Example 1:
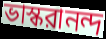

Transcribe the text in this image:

ভাস্করানন্দ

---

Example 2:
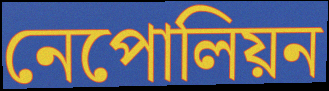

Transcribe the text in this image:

নেপোলিয়ন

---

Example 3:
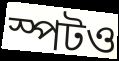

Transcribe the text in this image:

স্পটও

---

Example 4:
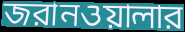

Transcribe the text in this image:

জরানওয়ালার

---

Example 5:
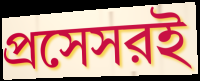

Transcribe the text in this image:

প্রসেসরই